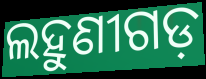
ଲହୁଣୀଗଡ଼